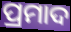
ପ୍ରମାଦ